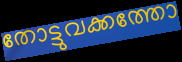
തോട്ടുവക്കത്തോ